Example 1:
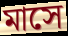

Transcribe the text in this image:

মাসে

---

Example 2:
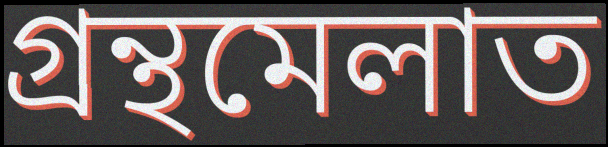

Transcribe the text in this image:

গ্ৰন্থমেলাত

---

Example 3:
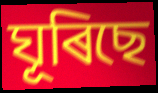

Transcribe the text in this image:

ঘূৰিছে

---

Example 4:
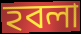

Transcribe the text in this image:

হবলা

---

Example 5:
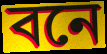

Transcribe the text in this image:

বনে